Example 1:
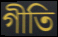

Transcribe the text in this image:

গীতি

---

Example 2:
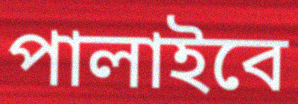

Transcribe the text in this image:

পালাইবে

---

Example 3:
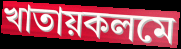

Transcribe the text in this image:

খাতায়কলমে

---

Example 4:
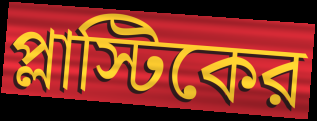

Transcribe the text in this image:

প্লাস্টিকের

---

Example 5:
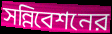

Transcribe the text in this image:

সন্নিবেশনের